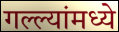
गल्ल्यांमध्ये